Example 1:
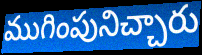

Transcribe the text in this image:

ముగింపునిచ్చారు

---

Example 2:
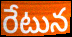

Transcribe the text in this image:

రేటున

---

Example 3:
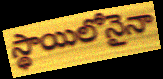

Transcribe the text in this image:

స్థాయిలోనైనా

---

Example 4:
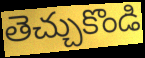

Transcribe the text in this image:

తెచ్చుకొండి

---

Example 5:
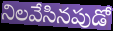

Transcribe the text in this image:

నిలవేసినపుడో